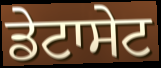
ਡੇਟਾਸੇਟ